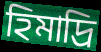
হিমাদ্রি